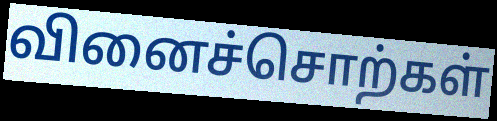
வினைச்சொற்கள்